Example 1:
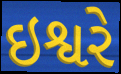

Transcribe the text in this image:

ઇશ્વરે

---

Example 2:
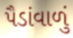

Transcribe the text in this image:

પૈડાંવાળું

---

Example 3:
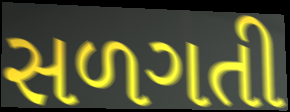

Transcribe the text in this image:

સળગતી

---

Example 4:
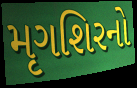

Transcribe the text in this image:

મૃગશિરનો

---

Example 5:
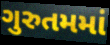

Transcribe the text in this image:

ગુરુતમમાં